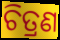
ଚିତ୍ରଣ